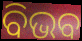
ବିଭବ